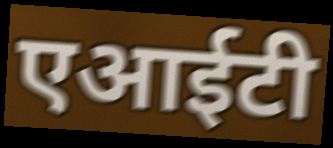
एआईटी